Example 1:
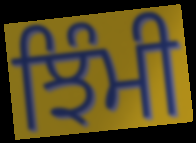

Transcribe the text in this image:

ਝਿੰਮੀ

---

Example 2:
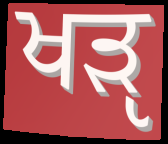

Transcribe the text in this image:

ਖੜੵ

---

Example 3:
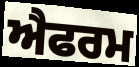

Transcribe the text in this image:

ਐਫਰਮ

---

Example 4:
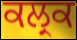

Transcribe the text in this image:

ਕਲ੍ਰਕ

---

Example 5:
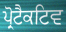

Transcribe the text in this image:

ਪ੍ਰੋਟੈਕਟਿਵ